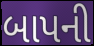
બાપની